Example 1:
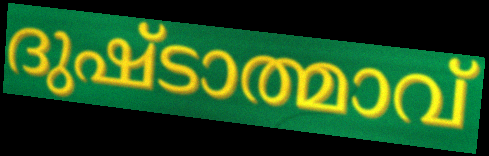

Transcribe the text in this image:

ദുഷ്ടാത്മാവ്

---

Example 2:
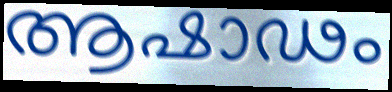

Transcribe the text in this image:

ആഷാഢം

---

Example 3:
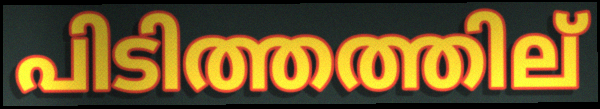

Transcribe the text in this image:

പിടിത്തത്തില്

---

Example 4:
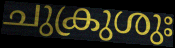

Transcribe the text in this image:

ചുക്രുശുഃ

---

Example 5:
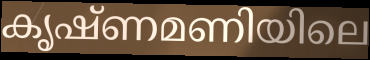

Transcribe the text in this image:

കൃഷ്ണമണിയിലെ